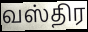
வஸ்திர